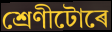
শ্ৰেণীটোৰে